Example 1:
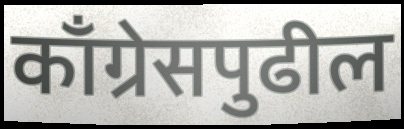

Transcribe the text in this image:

काँग्रेसपुढील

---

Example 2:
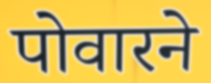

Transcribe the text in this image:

पोवारने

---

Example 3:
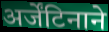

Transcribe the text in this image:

अर्जेंटिनाने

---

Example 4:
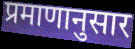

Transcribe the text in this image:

प्रमाणानुसार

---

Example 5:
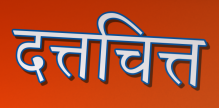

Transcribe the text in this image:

दत्तचित्त